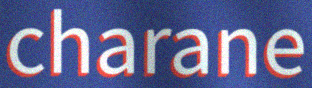
charane